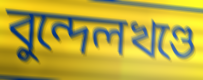
বুন্দেলখণ্ডে